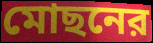
মোছনের